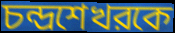
চন্দ্রশেখরকে